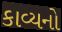
કાવ્યનો